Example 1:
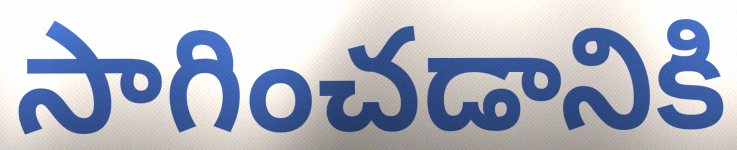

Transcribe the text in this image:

సాగించడానికి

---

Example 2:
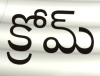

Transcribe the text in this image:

క్రోమ్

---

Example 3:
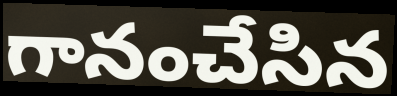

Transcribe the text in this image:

గానంచేసిన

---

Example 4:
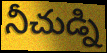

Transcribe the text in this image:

నీచుడ్ని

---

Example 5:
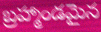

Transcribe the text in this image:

బ్రహ్మాండమైన